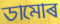
ডামোৰ